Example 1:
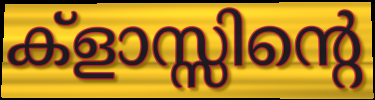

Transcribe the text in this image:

ക്ളാസ്സിന്റെ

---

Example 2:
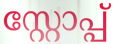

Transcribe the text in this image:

സ്റ്റോപ്പ്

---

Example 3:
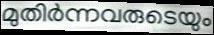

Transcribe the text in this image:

മുതിർന്നവരുടെയും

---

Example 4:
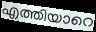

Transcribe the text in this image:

എത്തിയാറെ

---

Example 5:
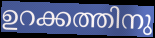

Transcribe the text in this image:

ഉറക്കത്തിനു